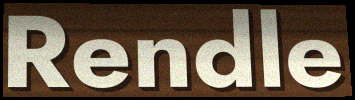
Rendle